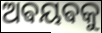
ଅଵୟଵକୁ